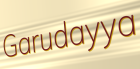
Garudayya